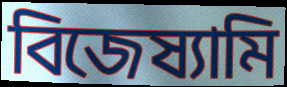
বিজেষ্যামি